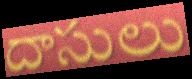
దాసులు